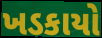
ખડકાયો